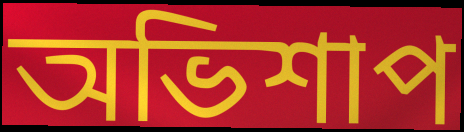
অভিশাপ